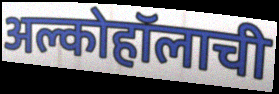
अल्कोहॉलाची